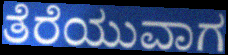
ತೆರೆಯುವಾಗ